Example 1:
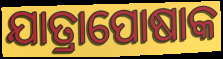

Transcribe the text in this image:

ଯାତ୍ରାପୋଷାକ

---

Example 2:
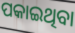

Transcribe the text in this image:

ପକାଇଥିବା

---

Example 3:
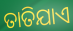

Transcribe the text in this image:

ତାତିଯାଏ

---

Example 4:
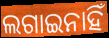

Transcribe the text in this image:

ଲଗାଇନାହିଁ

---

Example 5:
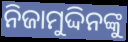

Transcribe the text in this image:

ନିଜାମୁଦ୍ଦିନଙ୍କୁ